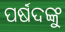
ପର୍ଷଦଙ୍କୁ